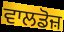
ਵਾਲਡੋਜ਼